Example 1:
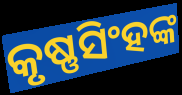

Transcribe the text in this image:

କୃଷ୍ଣସିଂହଙ୍କ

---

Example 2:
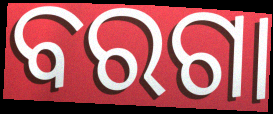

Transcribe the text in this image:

ବରଗା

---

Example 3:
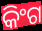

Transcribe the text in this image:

କିଂଗ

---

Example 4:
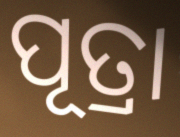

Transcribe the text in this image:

ପୂତ୍ରା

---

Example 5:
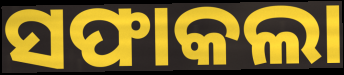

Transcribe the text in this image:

ସଫାକଲା